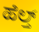
ಹೆಲ್ತ್